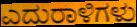
ಎದುರಾಳಿಗಳು